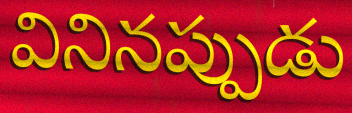
వినినప్పుడు